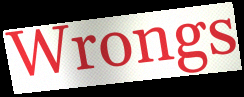
Wrongs